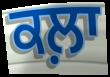
ਕਲ਼ਾ